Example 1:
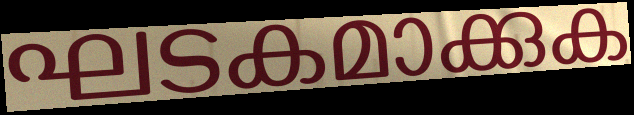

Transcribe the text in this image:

ഘടകമാക്കുക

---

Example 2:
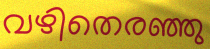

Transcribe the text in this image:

വഴിതെരഞ്ഞു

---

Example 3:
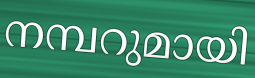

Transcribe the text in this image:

നമ്പറുമായി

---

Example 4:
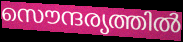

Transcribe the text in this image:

സൌന്ദര്യത്തിൽ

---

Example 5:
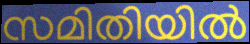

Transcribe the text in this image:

സമിതിയിൽ